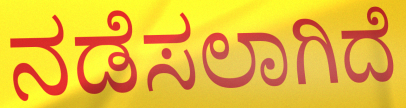
ನಡೆಸಲಾಗಿದೆ